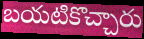
బయటికొచ్చారు